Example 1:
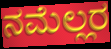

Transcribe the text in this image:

ನಮೆಲ್ಲರ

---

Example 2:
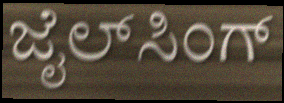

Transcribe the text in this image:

ಜೈಲ್‌ಸಿಂಗ್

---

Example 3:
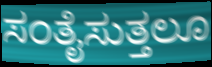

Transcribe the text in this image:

ಸಂತೈಸುತ್ತಲೂ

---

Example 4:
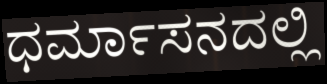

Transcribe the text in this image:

ಧರ್ಮಾಸನದಲ್ಲಿ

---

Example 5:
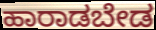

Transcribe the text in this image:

ಹಾರಾಡಬೇಡ